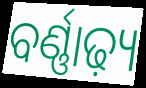
ବର୍ଣ୍ଣାଢ଼୍ୟ